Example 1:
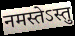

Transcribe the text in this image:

नमस्तेऽस्तु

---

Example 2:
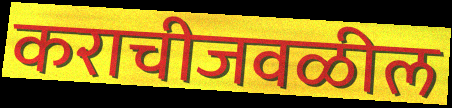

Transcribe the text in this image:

कराचीजवळील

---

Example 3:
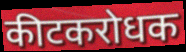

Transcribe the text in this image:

कीटकरोधक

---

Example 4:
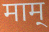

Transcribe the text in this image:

माम्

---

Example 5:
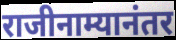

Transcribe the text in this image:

राजीनाम्यानंतर